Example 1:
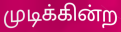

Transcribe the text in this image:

முடிக்கின்ற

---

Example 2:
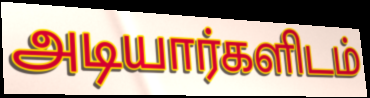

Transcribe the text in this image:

அடியார்களிடம்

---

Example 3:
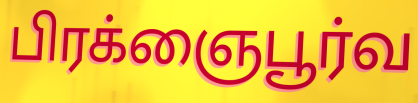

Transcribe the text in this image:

பிரக்ஞைபூர்வ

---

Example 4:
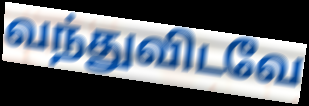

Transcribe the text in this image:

வந்துவிடவே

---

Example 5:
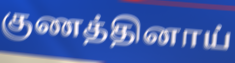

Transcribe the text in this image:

குணத்தினாய்